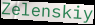
Zelenskiy